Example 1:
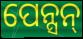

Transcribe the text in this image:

ପେନ୍ସନ୍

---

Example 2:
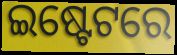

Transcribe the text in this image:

ଇଷ୍ଟେଟରେ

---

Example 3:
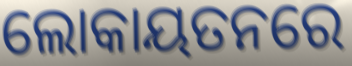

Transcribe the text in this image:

ଲୋକାୟତନରେ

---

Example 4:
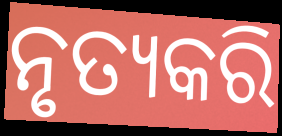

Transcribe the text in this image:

ନୃତ୍ୟକରି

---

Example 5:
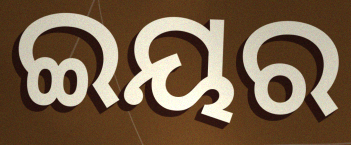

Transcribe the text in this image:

ଇୟର